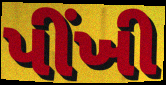
પીંખી